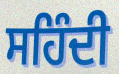
ਸਹਿੰਦੀ